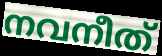
നവനീത്